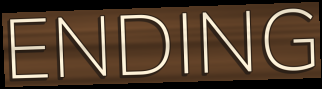
ENDING